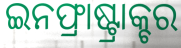
ଇନଫ୍ରାଷ୍ଟ୍ରାକ୍ଚର